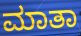
ಮಾತಾ